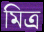
মিত্র